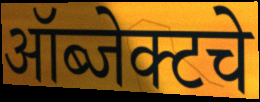
ऑब्जेक्टचे